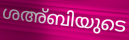
ശഅ്ബിയുടെ